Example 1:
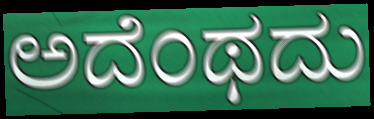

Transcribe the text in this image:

ಅದೆಂಥದು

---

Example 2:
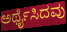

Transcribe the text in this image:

ಅರ್ಥೈಸಿದವು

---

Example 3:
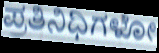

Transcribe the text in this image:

ಪ್ರತಿನಿಧಿಗಳೋ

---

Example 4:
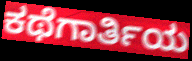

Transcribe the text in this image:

ಕಥೆಗಾರ್ತಿಯ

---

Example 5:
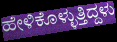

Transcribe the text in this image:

ಹೇಳಿಕೊಳ್ಳುತ್ತಿದ್ದಳು